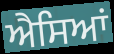
ਐਸਿਆਂ